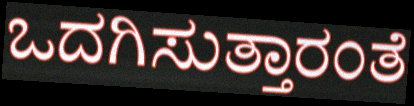
ಒದಗಿಸುತ್ತಾರಂತೆ